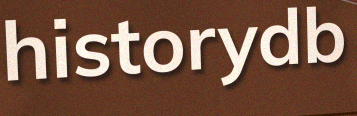
historydb